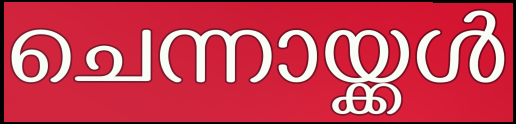
ചെന്നായ്ക്കൾ